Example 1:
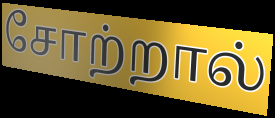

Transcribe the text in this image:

சோற்றால்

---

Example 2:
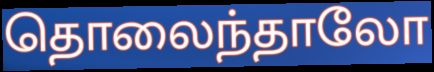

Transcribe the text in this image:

தொலைந்தாலோ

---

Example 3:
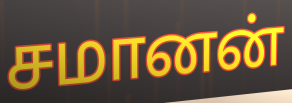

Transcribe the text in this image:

சமானன்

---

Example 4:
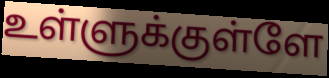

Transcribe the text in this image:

உள்ளுக்குள்ளே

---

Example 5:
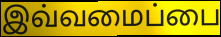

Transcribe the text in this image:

இவ்வமைப்பை